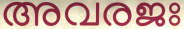
അവരജഃ